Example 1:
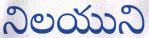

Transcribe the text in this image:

నిలయుని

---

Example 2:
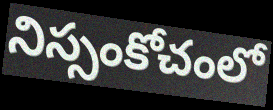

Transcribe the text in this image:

నిస్సంకోచంలో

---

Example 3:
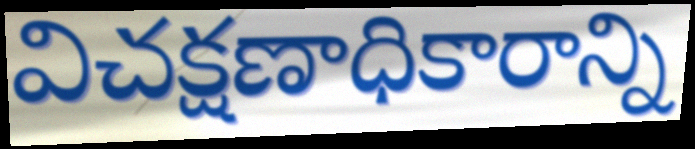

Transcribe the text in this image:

విచక్షణాధికారాన్ని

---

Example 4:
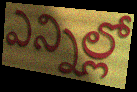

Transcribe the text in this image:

ఎన్నిల్లో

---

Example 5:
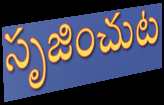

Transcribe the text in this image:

సృజించుట